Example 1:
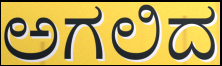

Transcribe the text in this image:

ಅಗಲಿದ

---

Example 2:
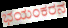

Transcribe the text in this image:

ಭಯಂಕರನ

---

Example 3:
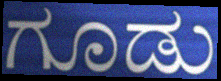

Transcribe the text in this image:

ಗೂಡು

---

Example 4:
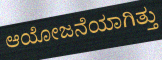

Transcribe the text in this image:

ಆಯೋಜನೆಯಾಗಿತ್ತು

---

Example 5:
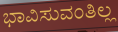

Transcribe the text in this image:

ಭಾವಿಸುವಂತಿಲ್ಲ